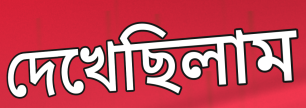
দেখেছিলাম